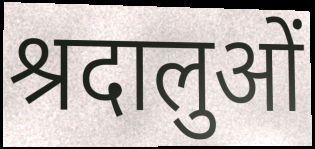
श्रदालुओं